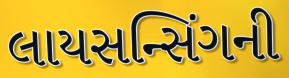
લાયસન્સિંગની